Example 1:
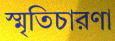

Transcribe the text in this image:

স্মৃতিচারণা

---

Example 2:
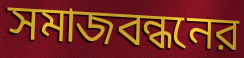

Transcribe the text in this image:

সমাজবন্ধনের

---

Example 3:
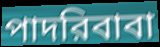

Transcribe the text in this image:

পাদরিবাবা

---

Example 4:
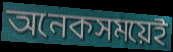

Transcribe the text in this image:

অনেকসময়েই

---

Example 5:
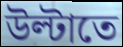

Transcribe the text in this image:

উল্টাতে